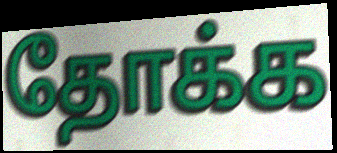
தோக்க